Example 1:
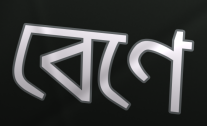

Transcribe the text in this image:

বেণে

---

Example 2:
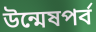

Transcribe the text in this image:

উন্মেষপর্ব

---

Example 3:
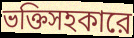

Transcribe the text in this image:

ভক্তিসহকারে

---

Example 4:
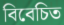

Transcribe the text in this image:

বিবেচিত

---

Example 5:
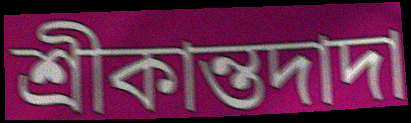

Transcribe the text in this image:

শ্রীকান্তদাদা